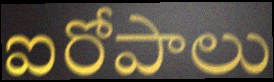
ఐరోపాలు